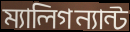
ম্যালিগন্যান্ট